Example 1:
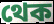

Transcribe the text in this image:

থেক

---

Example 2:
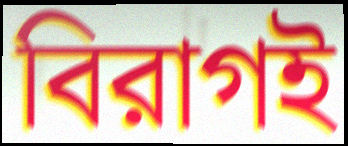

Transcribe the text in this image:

বিরাগই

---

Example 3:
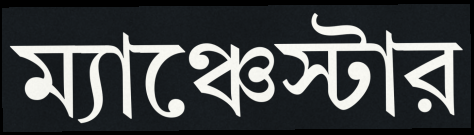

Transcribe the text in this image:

ম্যাঞ্চেস্টার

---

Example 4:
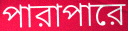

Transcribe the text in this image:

পারাপারে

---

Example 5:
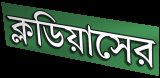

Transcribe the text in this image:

ক্লডিয়াসের